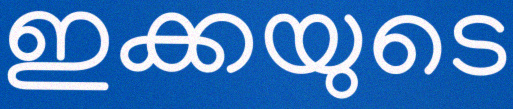
ഇക്കയുടെ